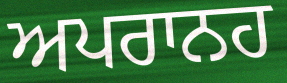
ਅਪਰਾਨਹ